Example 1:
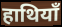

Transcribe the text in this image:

हाथियाँ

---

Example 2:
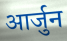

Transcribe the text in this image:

आर्जुन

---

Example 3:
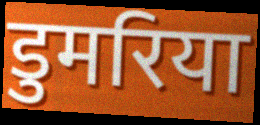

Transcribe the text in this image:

डुमरिया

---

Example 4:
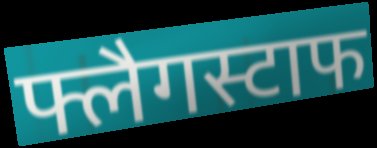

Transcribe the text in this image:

फ्लैगस्टाफ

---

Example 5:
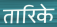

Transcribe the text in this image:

तारिके